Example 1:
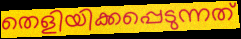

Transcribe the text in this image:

തെളിയിക്കപ്പെടുന്നത്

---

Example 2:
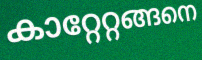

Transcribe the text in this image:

കാറ്റേറ്റങ്ങനെ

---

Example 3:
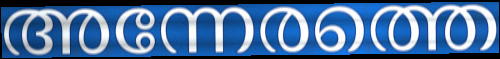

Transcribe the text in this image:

അന്നേരത്തെ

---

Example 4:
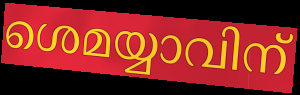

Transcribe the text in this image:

ശെമയ്യാവിന്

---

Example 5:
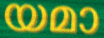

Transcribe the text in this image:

യമാ